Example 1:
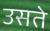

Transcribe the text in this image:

उसते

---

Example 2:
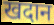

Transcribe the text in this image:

खदान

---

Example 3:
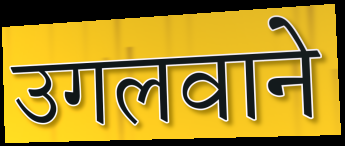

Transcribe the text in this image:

उगलवाने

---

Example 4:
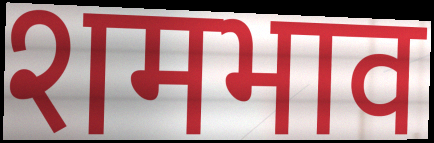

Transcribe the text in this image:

शमभाव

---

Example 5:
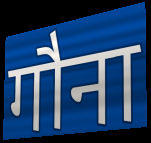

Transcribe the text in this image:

गौना